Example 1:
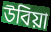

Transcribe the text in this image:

উবিয়া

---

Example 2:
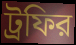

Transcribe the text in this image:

ট্রফির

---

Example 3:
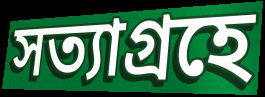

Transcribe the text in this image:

সত্যাগ্রহে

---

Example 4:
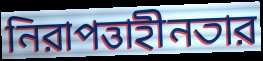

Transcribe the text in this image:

নিরাপত্তাহীনতার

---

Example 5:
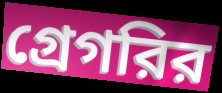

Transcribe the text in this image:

গ্রেগরির